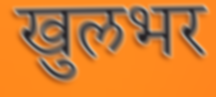
खुलभर